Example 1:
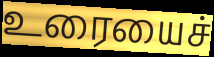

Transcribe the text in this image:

உரையைச்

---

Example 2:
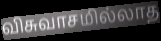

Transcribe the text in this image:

விசுவாசமில்லாத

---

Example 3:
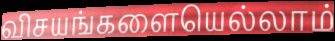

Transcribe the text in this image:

விசயங்களையெல்லாம்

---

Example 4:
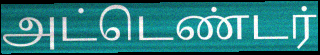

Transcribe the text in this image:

அட்டெண்டர்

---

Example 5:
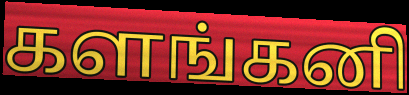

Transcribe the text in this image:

களங்கனி